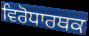
ਵਿਰੋਧਾਰਥਕ